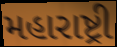
મહારાષ્ટ્રી